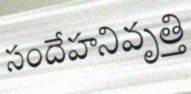
సందేహనివృత్తి